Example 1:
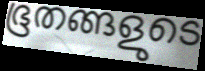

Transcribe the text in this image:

ഭൂതങ്ങളുടെ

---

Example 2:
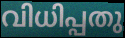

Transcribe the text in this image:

വിധിപ്പതു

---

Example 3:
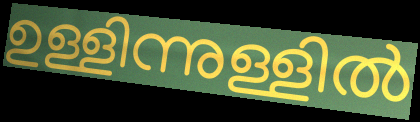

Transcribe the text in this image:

ഉള്ളിന്നുള്ളിൽ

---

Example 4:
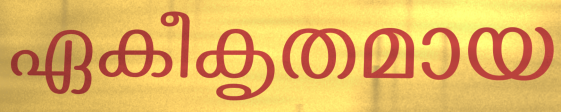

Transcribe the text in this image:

ഏകീകൃതമായ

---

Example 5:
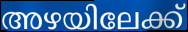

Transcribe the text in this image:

അഴയിലേക്ക്